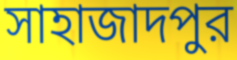
সাহাজাদপুর